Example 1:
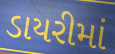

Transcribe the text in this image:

ડાયરીમાં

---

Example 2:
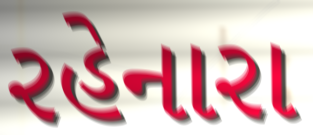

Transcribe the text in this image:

રહેનારા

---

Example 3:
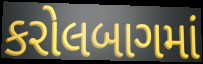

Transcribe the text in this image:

કરોલબાગમાં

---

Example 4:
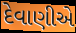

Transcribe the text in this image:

દેવાણીએ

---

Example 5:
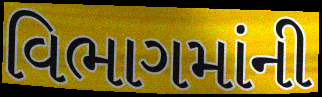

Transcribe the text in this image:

વિભાગમાંની